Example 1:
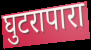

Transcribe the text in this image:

घुटरापारा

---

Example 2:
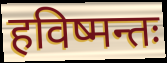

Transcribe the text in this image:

हविष्मन्तः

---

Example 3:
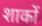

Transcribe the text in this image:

शाकों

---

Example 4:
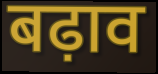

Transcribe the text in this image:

बढ़ाव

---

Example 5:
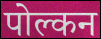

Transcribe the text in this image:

पोल्कन